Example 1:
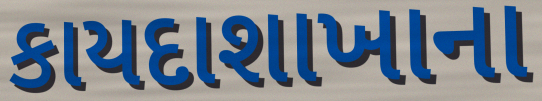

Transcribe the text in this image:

કાયદાશાખાના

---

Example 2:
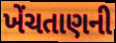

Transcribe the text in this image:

ખેંચતાણની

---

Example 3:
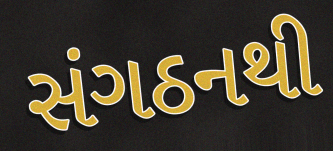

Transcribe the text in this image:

સંગઠનથી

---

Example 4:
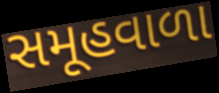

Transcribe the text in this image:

સમૂહવાળા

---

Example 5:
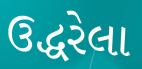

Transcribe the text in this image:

ઉદ્ધરેલા